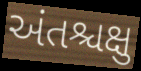
અંતશ્ચક્ષુ